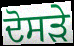
ਦੋਸੜੇ